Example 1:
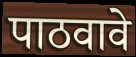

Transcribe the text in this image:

पाठवावे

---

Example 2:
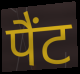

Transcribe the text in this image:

पैंट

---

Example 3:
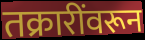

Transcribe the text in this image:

तक्रारींवरून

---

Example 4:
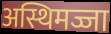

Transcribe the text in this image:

अस्थिमज्जा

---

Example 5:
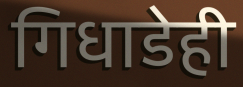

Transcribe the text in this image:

गिधाडेही